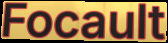
Focault